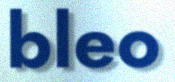
bleo